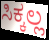
ಸಿಕ್ಕಲ್ಲ